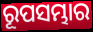
ରୂପସମ୍ଭାର